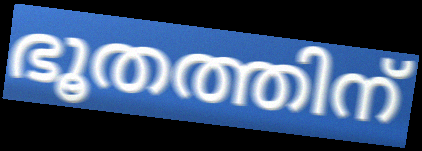
ഭൂതത്തിന്